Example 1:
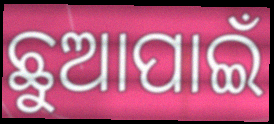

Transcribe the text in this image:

ଛୁଆପାଇଁ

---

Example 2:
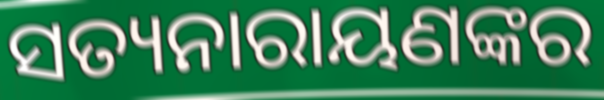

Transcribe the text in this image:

ସତ୍ୟନାରାୟଣଙ୍କର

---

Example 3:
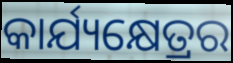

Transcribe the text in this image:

କାର୍ଯ୍ୟକ୍ଷେତ୍ରର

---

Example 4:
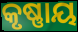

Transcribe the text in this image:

କୃଷ୍ଣାୟ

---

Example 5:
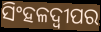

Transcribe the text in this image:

ସିଂହଳଦ୍ୱୀପର